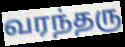
வரந்தரு